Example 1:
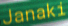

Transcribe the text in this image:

Janaki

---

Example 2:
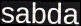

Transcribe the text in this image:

sabda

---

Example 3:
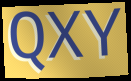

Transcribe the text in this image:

QXY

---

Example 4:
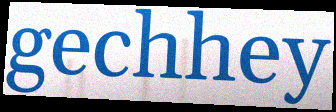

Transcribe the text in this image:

gechhey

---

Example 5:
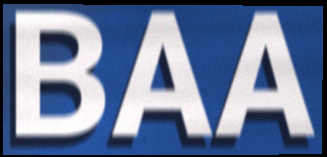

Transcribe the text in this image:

BAA